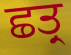
ਛਤ੍ਰ